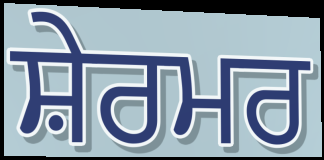
ਸ਼ੇਰਮਰ